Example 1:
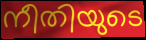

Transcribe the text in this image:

നീതിയുടെ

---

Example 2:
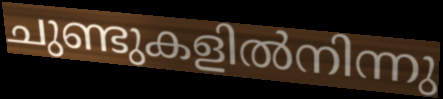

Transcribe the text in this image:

ചുണ്ടുകളിൽനിന്നു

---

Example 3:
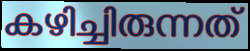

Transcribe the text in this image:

കഴിച്ചിരുന്നത്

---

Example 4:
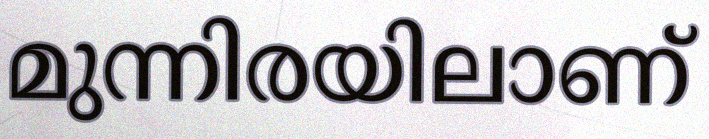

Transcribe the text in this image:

മുന്നിരയിലാണ്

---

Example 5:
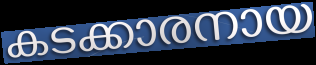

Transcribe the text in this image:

കടക്കാരനായ